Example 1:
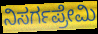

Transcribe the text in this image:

ನಿಸರ್ಗಪ್ರೇಮಿ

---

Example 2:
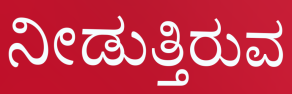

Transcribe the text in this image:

ನೀಡುತ್ತಿರುವ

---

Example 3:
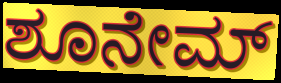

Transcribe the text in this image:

ಶೂನೇಮ್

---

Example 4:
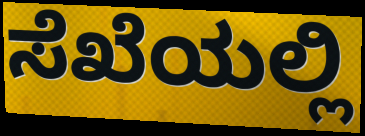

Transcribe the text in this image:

ಸೆಖೆಯಲ್ಲಿ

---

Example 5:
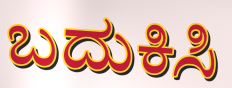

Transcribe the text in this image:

ಬದುಕಿಸಿ